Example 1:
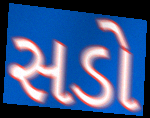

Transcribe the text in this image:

સડો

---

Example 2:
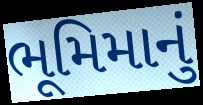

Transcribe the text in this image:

ભૂમિમાનું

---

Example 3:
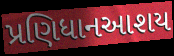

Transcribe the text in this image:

પ્રણિધાનઆશય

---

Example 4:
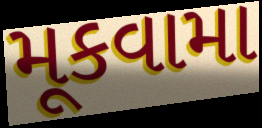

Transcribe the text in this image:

મૂકવામા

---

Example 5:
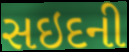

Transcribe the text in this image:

સઇદની